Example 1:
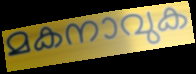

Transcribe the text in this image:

മകനാവുക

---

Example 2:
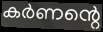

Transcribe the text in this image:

കർണന്റെ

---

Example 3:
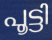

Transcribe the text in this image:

പൂട്ടി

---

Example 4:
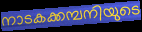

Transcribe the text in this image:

നാടകക്കമ്പനിയുടെ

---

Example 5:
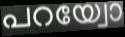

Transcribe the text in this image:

പറയ്വോ